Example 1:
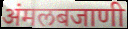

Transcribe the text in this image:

अंमलबजाणी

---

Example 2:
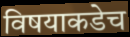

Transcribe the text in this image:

विषयाकडेच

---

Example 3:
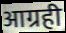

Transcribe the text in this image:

आग्रही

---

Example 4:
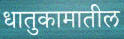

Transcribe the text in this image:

धातुकामातील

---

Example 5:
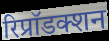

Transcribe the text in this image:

रिप्रॉडक्शन